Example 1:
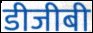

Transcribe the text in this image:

डीजीबी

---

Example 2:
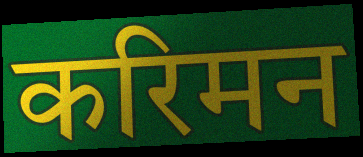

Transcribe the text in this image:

करिमन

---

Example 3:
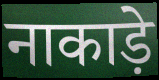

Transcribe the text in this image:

नाकाड़े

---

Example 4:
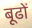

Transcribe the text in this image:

बूढों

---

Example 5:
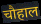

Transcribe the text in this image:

चौहाल